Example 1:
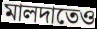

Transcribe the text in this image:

মালদাতেও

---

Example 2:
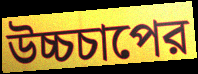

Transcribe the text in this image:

উচ্চচাপের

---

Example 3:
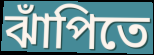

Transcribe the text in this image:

ঝাঁপিতে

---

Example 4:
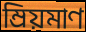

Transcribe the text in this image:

ম্রিয়মাণ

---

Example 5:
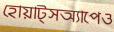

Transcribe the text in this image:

হোয়াট্‌সঅ্যাপেও